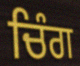
ਚਿੰਗ